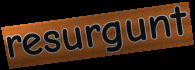
resurgunt